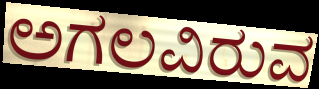
ಅಗಲವಿರುವ